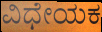
ವಿಧೇಯಕ